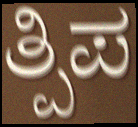
ತ್ಪಿಪ